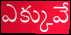
ఎక్కువే